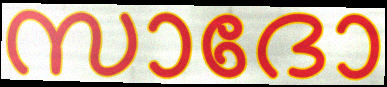
സാദോ